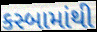
કસ્બામાંથી